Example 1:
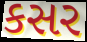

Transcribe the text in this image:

કસર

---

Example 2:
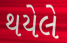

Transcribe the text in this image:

થયેલે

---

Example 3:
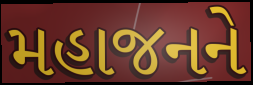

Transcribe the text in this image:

મહાજનને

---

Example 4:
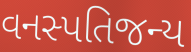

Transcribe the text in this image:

વનસ્પતિજન્ય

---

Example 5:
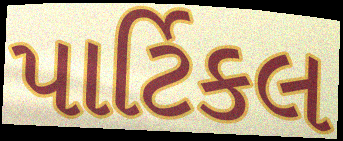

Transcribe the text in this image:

પાર્ટિકલ